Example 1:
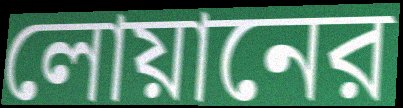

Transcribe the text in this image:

লোয়ানের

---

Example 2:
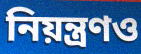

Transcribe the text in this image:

নিয়ন্ত্রণও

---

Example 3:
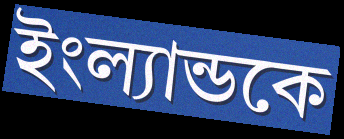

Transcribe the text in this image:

ইংল্যান্ডকে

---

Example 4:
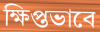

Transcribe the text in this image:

ক্ষিপ্তভাবে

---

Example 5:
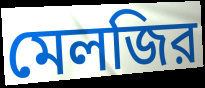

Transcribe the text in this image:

মেলজির